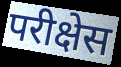
परीक्षेस